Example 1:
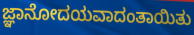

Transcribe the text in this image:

ಜ್ಞಾನೋದಯವಾದಂತಾಯಿತು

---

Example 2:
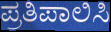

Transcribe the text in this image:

ಪ್ರತಿಪಾಲಿಸಿ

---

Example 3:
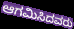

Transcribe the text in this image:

ಆಗಮಿಸಿದವರು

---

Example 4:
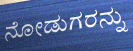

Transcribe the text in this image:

ನೋಡುಗರನ್ನು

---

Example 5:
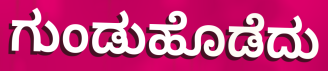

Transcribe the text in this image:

ಗುಂಡುಹೊಡೆದು